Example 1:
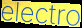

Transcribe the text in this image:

electro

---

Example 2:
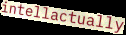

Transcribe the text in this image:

intellactually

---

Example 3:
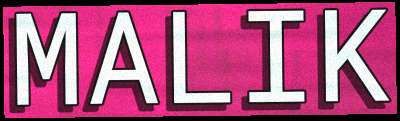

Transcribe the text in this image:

MALIK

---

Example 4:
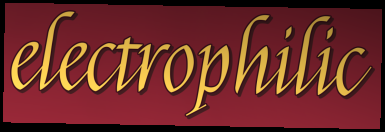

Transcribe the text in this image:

electrophilic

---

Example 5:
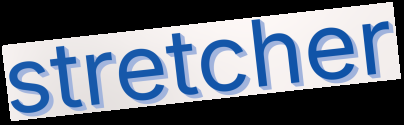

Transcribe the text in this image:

stretcher